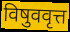
विषुववृत्त